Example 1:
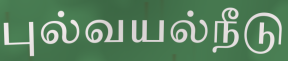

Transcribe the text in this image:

புல்வயல்நீடு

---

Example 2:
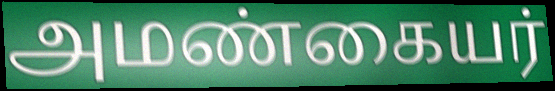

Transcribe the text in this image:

அமண்கையர்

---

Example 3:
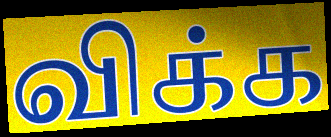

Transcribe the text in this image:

விக்க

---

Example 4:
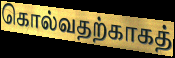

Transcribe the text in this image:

கொல்வதற்காகத்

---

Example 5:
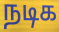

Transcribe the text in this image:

நடிக